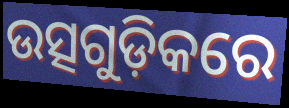
ଉତ୍ସଗୁଡ଼ିକରେ